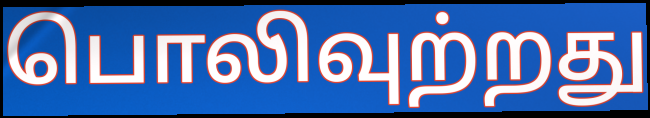
பொலிவுற்றது